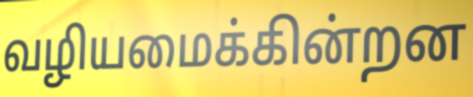
வழியமைக்கின்றன